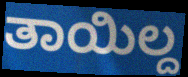
ತಾಯಿಲ್ದ